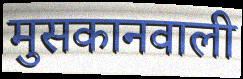
मुसकानवाली